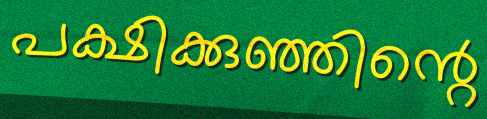
പക്ഷിക്കുഞ്ഞിന്റെ